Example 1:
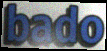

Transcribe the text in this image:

bado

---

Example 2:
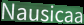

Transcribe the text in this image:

Nausicaa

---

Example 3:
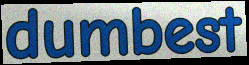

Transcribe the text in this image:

dumbest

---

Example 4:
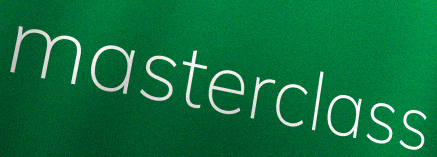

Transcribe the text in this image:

masterclass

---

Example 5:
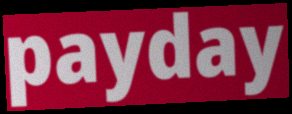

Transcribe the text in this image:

payday